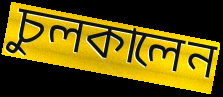
চুলকালেন